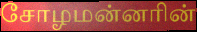
சோழமன்னரின்